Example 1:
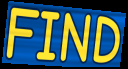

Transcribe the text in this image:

FIND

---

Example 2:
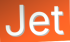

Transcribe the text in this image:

Jet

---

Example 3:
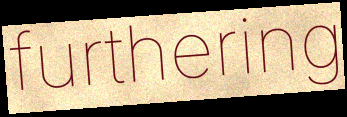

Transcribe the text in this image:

furthering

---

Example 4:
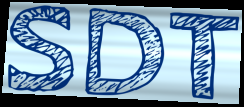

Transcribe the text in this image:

SDT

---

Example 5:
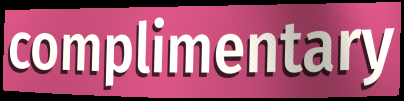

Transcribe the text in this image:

complimentary